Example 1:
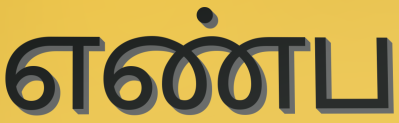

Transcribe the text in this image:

எண்ப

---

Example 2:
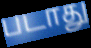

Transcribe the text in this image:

படாது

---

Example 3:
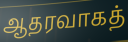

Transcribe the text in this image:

ஆதரவாகத்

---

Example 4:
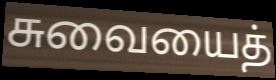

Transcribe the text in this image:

சுவையைத்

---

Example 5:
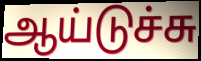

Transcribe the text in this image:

ஆய்டுச்சு